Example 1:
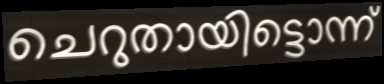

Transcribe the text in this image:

ചെറുതായിട്ടൊന്ന്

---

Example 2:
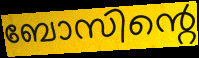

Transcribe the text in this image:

ബോസിന്റെ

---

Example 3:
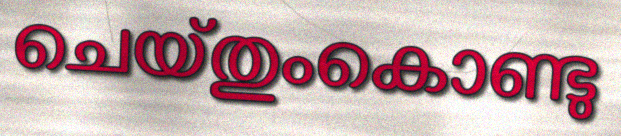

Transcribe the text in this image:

ചെയ്തുംകൊണ്ടു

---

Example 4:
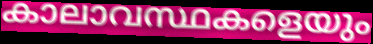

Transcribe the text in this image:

കാലാവസ്ഥകളെയും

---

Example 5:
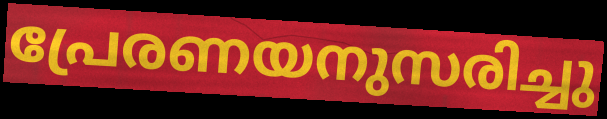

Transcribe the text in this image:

പ്രേരണയനുസരിച്ചു